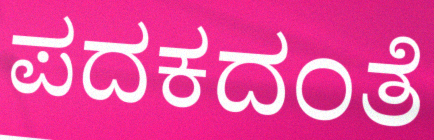
ಪದಕದಂತೆ